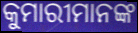
କୁମାରୀମାନଙ୍କ